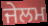
ਜੇਲਮ